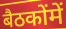
बैठकोंमें